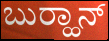
ಬುರ‍್ಹಾನ್